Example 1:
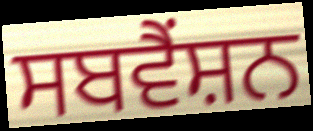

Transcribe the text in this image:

ਸਬਵੈਂਸ਼ਨ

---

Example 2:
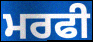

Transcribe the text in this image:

ਮਰਫੀ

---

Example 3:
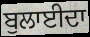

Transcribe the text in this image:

ਬੁਲਾਈਦਾ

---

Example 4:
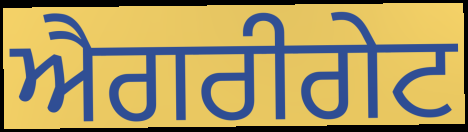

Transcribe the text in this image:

ਐਗਰੀਗੇਟ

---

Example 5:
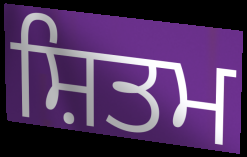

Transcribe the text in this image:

ਸ਼ਿਤਮ